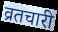
व्रतचारी